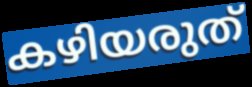
കഴിയരുത്